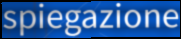
spiegazione